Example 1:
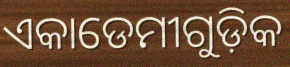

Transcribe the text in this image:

ଏକାଡେମୀଗୁଡ଼ିକ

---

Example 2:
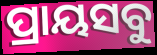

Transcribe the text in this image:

ପ୍ରାୟସବୁ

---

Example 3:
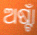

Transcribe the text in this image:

ଅଷ୍ଟାଁ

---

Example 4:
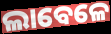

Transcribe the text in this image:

ଲାବେଳେ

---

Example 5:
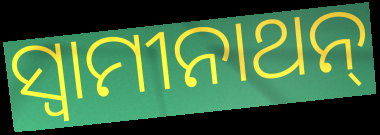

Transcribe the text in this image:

ସ୍ବାମୀନାଥନ୍